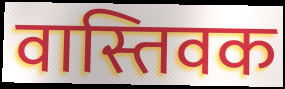
वास्तिवक